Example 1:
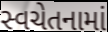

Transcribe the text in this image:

સ્વચેતનામાં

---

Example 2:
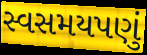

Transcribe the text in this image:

સ્વસમયપણું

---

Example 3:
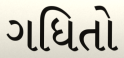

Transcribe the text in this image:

ગધિતો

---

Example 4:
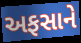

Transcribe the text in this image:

અફસાને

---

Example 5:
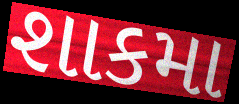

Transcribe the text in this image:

શાકમા